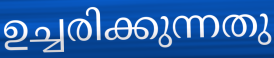
ഉച്ചരിക്കുന്നതു